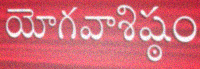
యోగవాశిష్ఠం